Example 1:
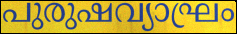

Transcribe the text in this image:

പുരുഷവ്യാഘ്രം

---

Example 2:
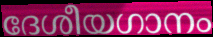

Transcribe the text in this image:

ദേശീയഗാനം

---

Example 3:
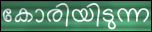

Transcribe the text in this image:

കോരിയിടുന്ന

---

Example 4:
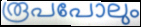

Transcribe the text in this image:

രൂപപോലും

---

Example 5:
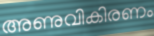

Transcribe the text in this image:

അണുവികിരണം